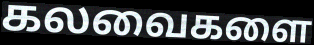
கலவைகளை